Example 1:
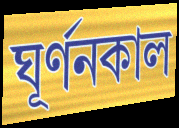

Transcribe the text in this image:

ঘূর্ণনকাল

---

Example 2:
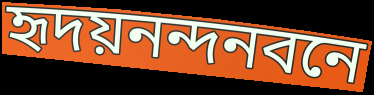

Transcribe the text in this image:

হৃদয়নন্দনবনে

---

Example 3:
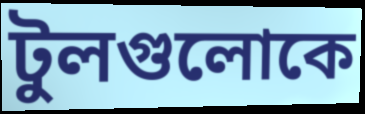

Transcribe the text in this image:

টুলগুলোকে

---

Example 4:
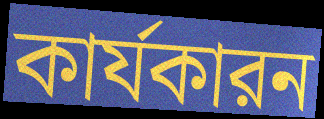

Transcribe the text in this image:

কার্যকারন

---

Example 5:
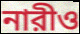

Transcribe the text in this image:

নারীও